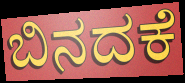
ಬಿನದಕೆ